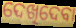
ଦେଖିଦେବା